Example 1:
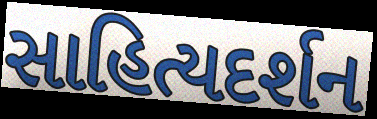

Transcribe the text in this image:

સાહિત્યદર્શન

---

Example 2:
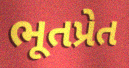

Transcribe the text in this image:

ભૂતપ્રેત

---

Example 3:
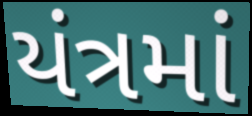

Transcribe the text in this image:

યંત્રમાં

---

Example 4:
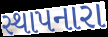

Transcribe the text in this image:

સ્થાપનારા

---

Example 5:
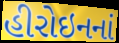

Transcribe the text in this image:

હીરોઇનનાં